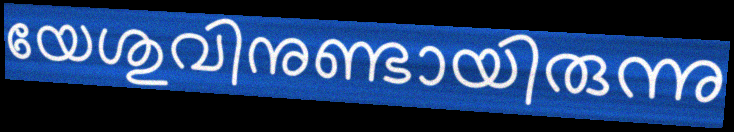
യേശുവിനുണ്ടായിരുന്നു